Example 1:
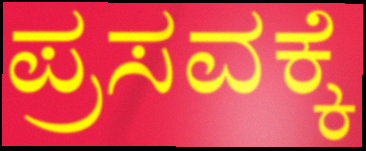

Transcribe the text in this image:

ಪ್ರಸವಕ್ಕೆ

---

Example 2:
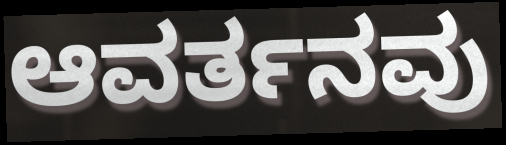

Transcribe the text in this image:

ಆವರ್ತನವು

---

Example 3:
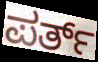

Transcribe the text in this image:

ಪರ್ತ್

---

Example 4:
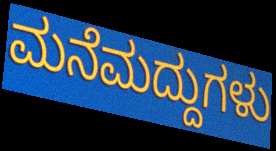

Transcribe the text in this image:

ಮನೆಮದ್ದುಗಳು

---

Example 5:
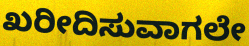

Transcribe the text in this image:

ಖರೀದಿಸುವಾಗಲೇ